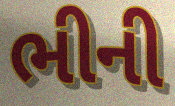
ભીની